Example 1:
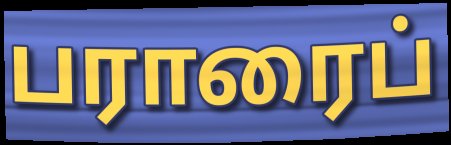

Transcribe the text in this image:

பராரைப்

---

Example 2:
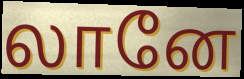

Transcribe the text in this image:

லானே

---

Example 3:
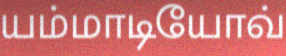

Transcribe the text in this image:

யம்மாடியோவ்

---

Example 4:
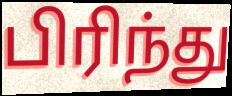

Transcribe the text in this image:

பிரிந்து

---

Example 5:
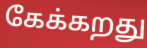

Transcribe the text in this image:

கேக்கறது